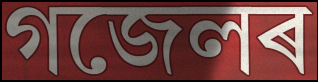
গজেলৰ